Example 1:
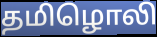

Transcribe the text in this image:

தமிழொலி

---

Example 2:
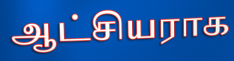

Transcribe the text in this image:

ஆட்சியராக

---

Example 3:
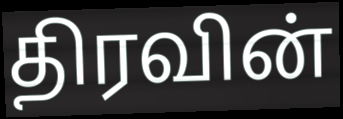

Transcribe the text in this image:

திரவின்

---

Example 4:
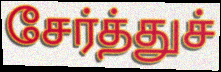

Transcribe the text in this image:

சேர்த்துச்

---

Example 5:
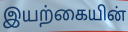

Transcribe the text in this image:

இயற்கையின்